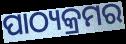
ପାଠ୍ୟକ୍ରମର